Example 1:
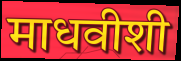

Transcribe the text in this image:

माधवीशी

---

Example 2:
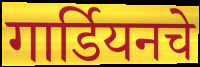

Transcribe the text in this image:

गार्डियनचे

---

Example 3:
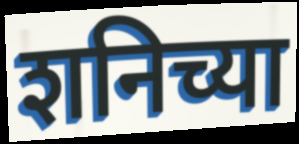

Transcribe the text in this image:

शनिच्या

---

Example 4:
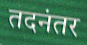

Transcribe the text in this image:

तदनंतर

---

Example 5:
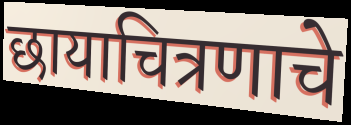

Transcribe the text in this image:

छायाचित्रणाचे